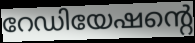
റേഡിയേഷന്റെ